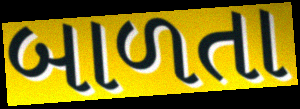
બાળતા